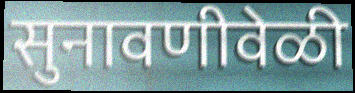
सुनावणीवेळी